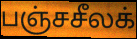
பஞ்சசீலக்